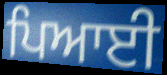
ਪਿਆਈ